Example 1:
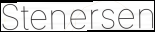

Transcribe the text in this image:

Stenersen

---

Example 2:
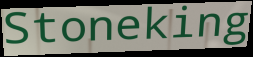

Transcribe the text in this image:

Stoneking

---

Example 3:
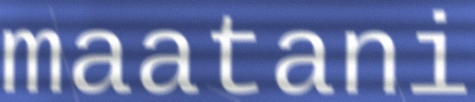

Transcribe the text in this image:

maatani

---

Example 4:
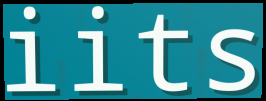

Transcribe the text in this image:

iits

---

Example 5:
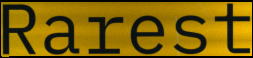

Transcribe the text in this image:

Rarest